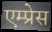
एम्प्रेस